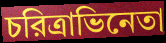
চরিত্রাভিনেতা